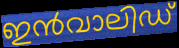
ഇൻവാലിഡ്